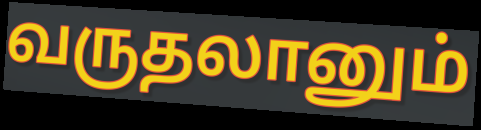
வருதலானும்